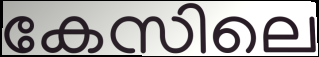
കേസിലെ